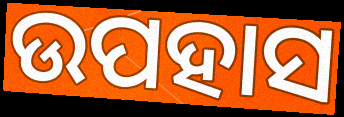
ଉପହାସ